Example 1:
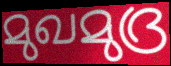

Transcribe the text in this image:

മുഖമുദ്ര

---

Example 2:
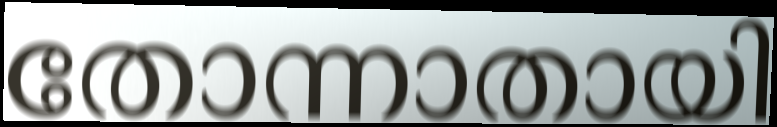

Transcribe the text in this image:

തോന്നാതായി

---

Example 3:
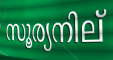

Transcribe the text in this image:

സൂര്യനില്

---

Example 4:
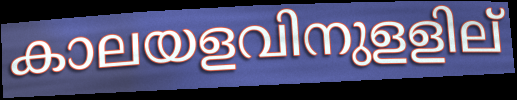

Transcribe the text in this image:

കാലയളവിനുളളില്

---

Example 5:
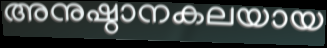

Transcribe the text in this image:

അനുഷ്ഠാനകലയായ